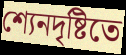
শ্যেনদৃষ্টিতে